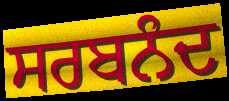
ਸਰਬਨੰਦ